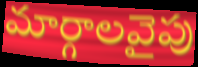
మార్గాలవైపు